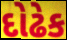
દોઢેક